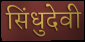
सिंधुदेवी